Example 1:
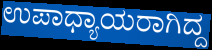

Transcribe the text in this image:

ಉಪಾಧ್ಯಾಯರಾಗಿದ್ದ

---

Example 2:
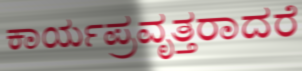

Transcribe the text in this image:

ಕಾರ್ಯಪ್ರವೃತ್ತರಾದರೆ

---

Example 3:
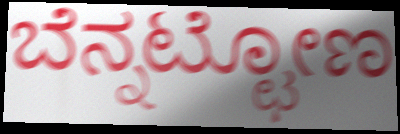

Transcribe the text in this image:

ಬೆನ್ನಟ್ಟೋಣ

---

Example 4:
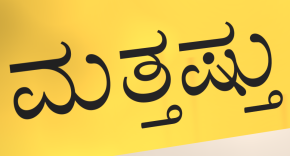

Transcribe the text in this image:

ಮತ್ತಷ್ತು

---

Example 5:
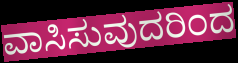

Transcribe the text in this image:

ವಾಸಿಸುವುದರಿಂದ